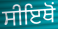
ਸੀਇਥੋਂ